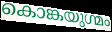
കൊങ്കയുഗ്മം